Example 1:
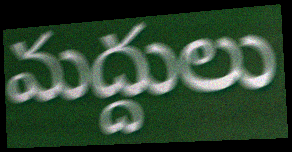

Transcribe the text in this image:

మద్దులు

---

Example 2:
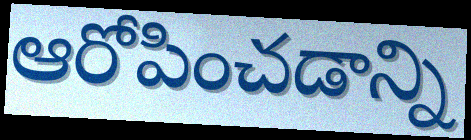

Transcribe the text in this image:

ఆరోపించడాన్ని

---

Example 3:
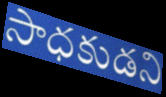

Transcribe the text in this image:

సాధకుడని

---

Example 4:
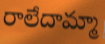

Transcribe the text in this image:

రాలేదామ్మా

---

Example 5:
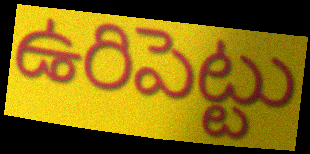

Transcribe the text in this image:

ఉరిపెట్టు